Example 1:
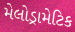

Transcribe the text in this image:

મેલોડ્રામેટિક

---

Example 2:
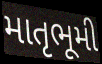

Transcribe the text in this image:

માતૃભૂમી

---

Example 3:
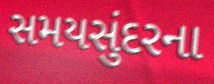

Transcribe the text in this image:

સમયસુંદરના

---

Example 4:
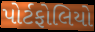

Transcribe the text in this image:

પોર્ટફોલિયો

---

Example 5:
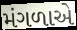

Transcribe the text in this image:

મંગળાએ